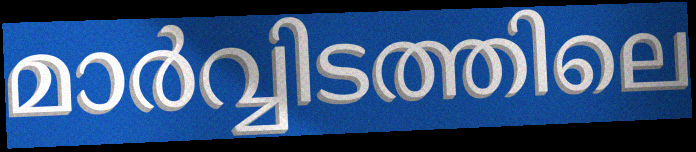
മാർവ്വിടത്തിലെ